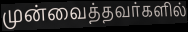
முன்வைத்தவர்களில்